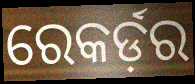
ରେକର୍ଡ଼ର